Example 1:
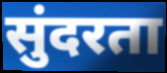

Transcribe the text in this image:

सुंदरता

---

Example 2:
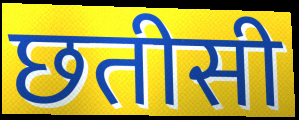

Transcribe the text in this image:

छतीसी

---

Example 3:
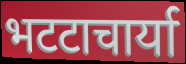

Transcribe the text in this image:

भटटाचार्या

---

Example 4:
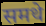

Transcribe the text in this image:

समथे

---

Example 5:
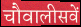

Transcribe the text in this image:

चौवालीसवें